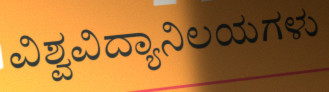
ವಿಶ್ವವಿದ್ಯಾನಿಲಯಗಳು